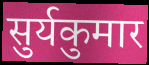
सुर्यकुमार